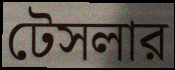
টেসলার